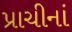
પ્રાચીનાં